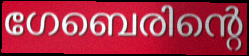
ഗേബെരിന്റെ